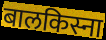
बालकिस्ना